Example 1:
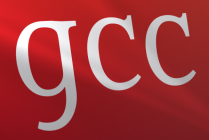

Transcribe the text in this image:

gcc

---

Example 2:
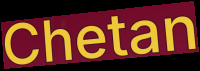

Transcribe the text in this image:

Chetan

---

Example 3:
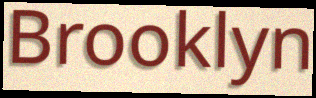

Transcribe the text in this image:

Brooklyn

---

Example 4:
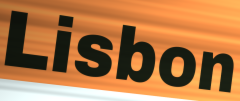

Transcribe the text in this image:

Lisbon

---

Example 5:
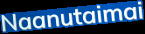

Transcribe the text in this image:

Naanutaimai